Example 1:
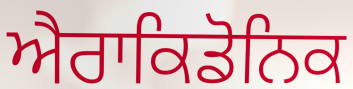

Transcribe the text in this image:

ਐਰਾਕਿਡੋਨਿਕ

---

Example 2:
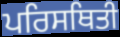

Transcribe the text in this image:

ਪਰਿਸਥਿਤੀ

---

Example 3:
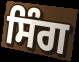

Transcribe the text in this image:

ਸਿੰਗ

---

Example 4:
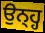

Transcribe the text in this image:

ਉਨ੍ਹ੍ਹ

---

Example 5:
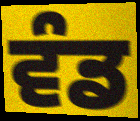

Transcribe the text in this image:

ਵੰਡ